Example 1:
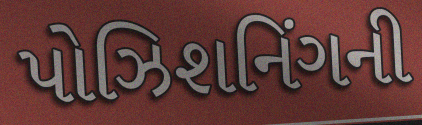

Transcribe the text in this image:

પોઝિશનિંગની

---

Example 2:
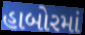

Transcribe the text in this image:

હાબોરમાં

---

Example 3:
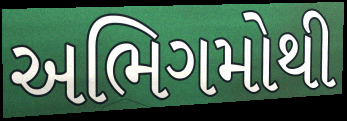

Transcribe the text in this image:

અભિગમોથી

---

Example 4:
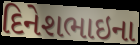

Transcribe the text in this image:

દિનેશભાઇના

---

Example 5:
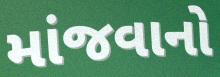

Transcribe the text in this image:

માંજવાનો